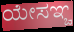
ಯೇಸಞ್ಚ